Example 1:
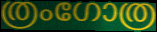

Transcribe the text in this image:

ത്രംഗോത്ര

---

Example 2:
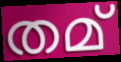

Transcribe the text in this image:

തമ്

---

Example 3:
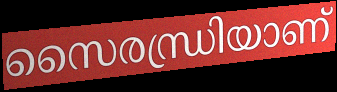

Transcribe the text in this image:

സൈരന്ധ്രിയാണ്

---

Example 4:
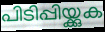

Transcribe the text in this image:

പിടിപ്പിയ്ക്കുക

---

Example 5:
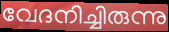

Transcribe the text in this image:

വേദനിച്ചിരുന്നു